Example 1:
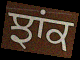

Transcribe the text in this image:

ਝਾਂਕ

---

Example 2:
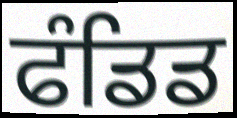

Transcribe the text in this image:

ਫੰਡਿਡ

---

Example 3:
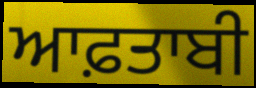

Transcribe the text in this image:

ਆਫ਼ਤਾਬੀ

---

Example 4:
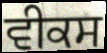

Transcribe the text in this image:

ਵੀਕਸ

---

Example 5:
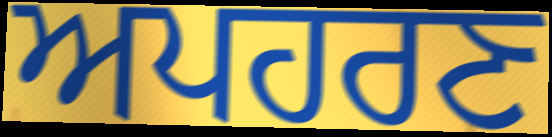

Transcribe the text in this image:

ਅਪਹਰਣ